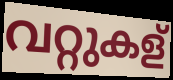
വറ്റുകള്